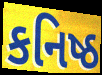
કનિષ્ઠ